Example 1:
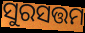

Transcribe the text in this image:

ସୁରସତ୍ତମ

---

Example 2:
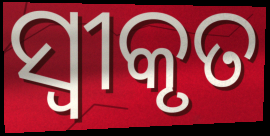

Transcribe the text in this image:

ସ୍ଵୀକୃତ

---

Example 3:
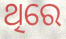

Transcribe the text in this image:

ଥିରେ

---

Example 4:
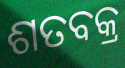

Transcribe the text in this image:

ଶତବକ୍ର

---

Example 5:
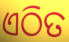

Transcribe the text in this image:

ଏଠିତ